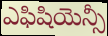
ఎఫిషియెన్సీ